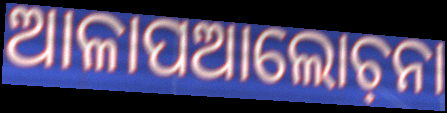
ଆଳାପଆଲୋଚ଼ନା